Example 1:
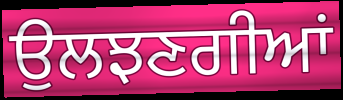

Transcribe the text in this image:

ਉਲਝਣਗੀਆਂ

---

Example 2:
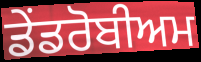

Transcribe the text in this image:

ਡੇਂਡਰੋਬੀਅਮ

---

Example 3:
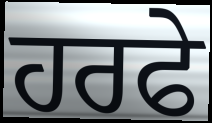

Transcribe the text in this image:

ਹਰਫੇ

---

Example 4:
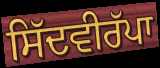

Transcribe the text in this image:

ਸਿੱਦਵੀਰੱਪਾ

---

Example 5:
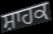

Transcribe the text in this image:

ਸ਼ਾਹਕ